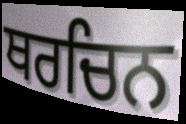
ਥਰਚਿਨ